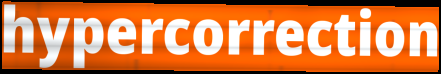
hypercorrection